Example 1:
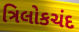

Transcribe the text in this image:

ત્રિલોકચંદ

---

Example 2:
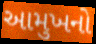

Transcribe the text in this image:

આમુખનો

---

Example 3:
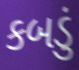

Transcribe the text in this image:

કબડું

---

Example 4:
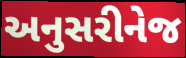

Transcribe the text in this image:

અનુસરીનેજ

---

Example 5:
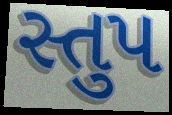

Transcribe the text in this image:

સ્તુપ